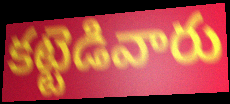
కట్టెడివారు